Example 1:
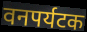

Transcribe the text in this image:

वनपर्यटक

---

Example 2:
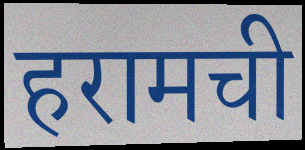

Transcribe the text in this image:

हरामची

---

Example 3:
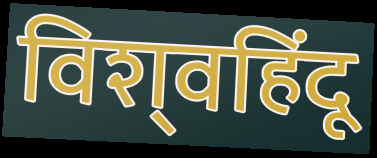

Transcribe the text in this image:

विश्वहिंदू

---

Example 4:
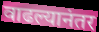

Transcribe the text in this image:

वाढल्यानंतर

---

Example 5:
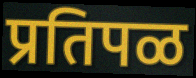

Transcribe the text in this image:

प्रतिपळ